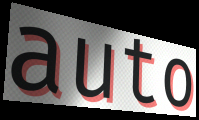
auto